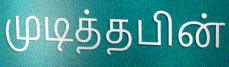
முடித்தபின்